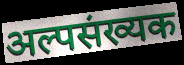
अल्पसंख्यक